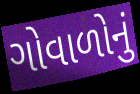
ગોવાળોનું